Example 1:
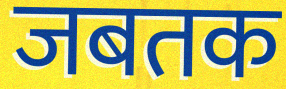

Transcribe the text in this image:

जबतक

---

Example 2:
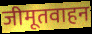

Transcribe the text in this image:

जीमूतवाहन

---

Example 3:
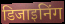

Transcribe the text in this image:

डिजाइनिंग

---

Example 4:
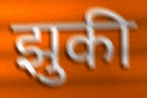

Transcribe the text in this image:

झुकी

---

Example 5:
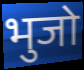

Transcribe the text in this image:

भुजो